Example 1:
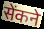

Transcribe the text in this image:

सेंकने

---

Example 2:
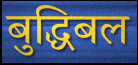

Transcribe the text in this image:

बुद्धिबल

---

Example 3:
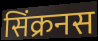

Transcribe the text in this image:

सिंक्रनस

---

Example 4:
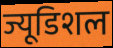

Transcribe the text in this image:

ज्यूडिशल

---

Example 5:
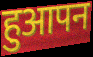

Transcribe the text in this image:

हुआपन